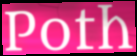
Poth